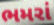
ભમરાં